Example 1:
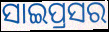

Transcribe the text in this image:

ସାଇପ୍ରସର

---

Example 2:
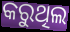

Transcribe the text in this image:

କରୁଥିଲ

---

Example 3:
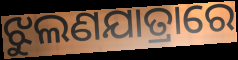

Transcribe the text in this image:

ଝୁଲଣଯାତ୍ରାରେ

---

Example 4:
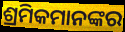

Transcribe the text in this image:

ଶ୍ରମିକମାନଙ୍କର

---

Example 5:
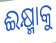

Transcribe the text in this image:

ଈକ୍ଷ୍ମାକୁ